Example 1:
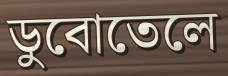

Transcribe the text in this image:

ডুবোতেলে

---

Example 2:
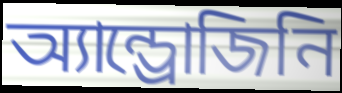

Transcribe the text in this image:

অ্যান্ড্রোজিনি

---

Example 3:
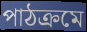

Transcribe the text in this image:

পাঠক্রমে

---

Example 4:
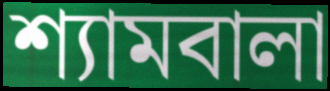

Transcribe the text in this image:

শ্যামবালা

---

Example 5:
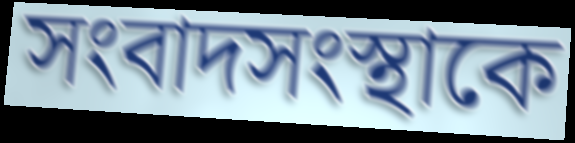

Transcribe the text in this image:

সংবাদসংস্থাকে